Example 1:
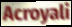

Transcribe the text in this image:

Acroyali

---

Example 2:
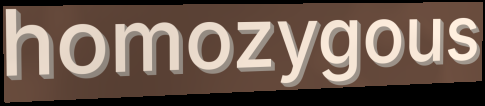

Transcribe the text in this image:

homozygous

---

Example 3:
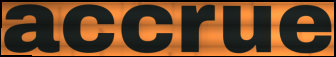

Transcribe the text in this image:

accrue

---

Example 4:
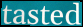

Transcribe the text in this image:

tasted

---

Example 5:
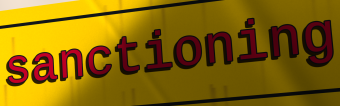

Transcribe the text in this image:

sanctioning